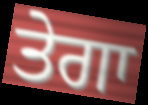
ਤੇਗਾ